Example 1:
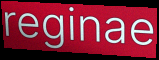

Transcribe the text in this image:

reginae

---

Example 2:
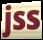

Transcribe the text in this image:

jss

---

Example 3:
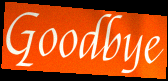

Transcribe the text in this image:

Goodbye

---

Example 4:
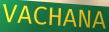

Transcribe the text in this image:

VACHANA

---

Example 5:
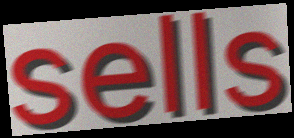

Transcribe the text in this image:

sells